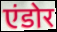
एंडोर